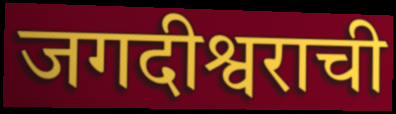
जगदीश्वराची